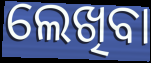
ଲେଖିବା